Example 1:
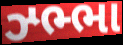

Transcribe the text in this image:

ઝ્ભ્ભા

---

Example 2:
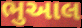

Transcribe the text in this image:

ભુઆલ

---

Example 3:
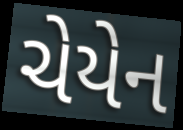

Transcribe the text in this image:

ચેયેન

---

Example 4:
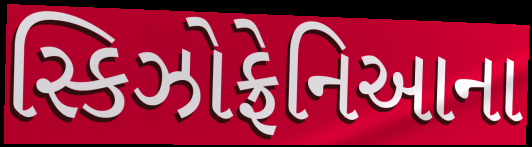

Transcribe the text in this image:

સ્કિઝોફ્રેનિઆના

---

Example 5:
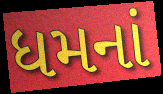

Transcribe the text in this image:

ધમનાં